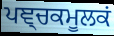
ਪਞ੍ਚਕਮੂਲਕਂ